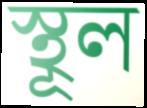
স্থূল